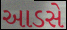
આડસે